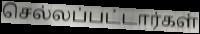
செல்லப்பட்டார்கள்